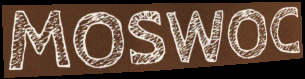
MOSWOC